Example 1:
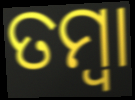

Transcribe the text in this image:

ତମ୍ୱା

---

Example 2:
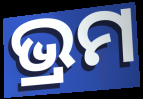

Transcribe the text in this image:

ଭ୍ରମ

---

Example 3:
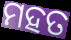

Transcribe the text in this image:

ମହତ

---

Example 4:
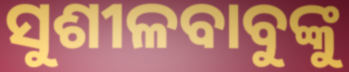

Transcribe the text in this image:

ସୁଶୀଳବାବୁଙ୍କୁ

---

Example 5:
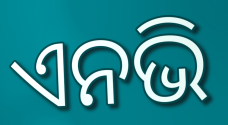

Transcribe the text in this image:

ଏନଭି